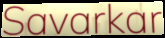
Savarkar